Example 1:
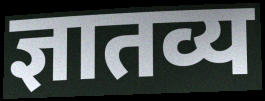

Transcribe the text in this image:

ज्ञातव्य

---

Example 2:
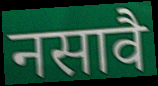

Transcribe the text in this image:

नसावै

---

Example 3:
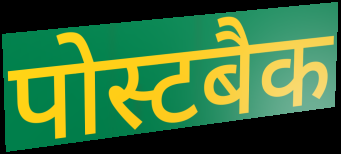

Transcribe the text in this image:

पोस्टबैक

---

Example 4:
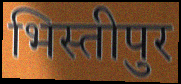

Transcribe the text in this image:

भिस्तीपुर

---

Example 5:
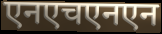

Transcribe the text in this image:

एनएचएनएन